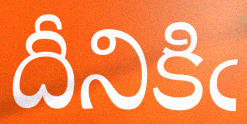
దీనికిఁ